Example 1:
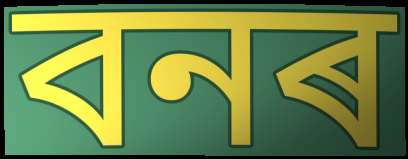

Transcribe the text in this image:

বনৰ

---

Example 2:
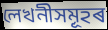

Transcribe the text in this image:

লেখনীসমূহৰ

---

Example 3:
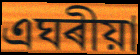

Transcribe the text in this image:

এঘৰীয়া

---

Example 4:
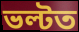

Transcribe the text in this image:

ভল্টত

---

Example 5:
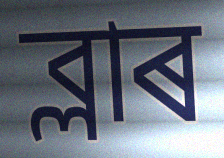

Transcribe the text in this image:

ব্লাৰ